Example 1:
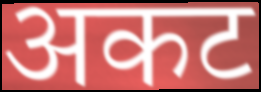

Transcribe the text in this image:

अकट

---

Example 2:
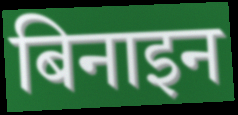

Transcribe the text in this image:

बिनाइन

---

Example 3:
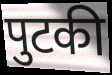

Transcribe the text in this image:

पुटकी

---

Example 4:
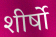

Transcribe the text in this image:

शीर्षो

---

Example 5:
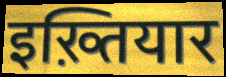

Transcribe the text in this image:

इख़्तियार